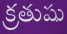
క్రతుషు